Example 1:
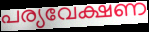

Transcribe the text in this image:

പര്യവേക്ഷണ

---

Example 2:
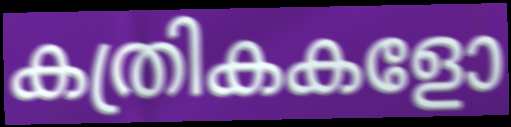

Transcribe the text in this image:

കത്രികകളോ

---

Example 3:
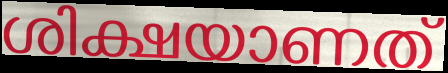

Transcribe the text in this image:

ശിക്ഷയാണത്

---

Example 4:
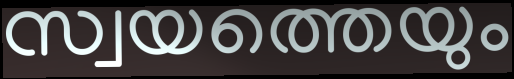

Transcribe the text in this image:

സ്വയത്തെയും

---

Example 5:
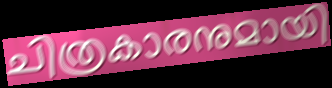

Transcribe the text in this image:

ചിത്രകാരനുമായി